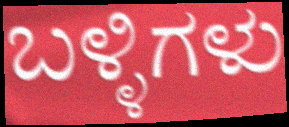
ಬಳ್ಳಿಗಳು